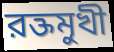
রক্তমুখী